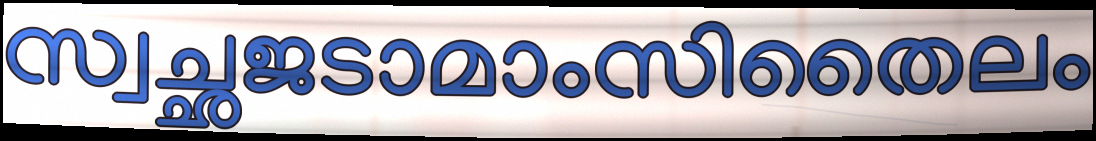
സ്വച്ഛജടാമാംസിതൈലം